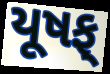
યૂષફ્